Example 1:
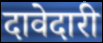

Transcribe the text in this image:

दावेदारी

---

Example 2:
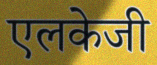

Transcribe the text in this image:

एलकेजी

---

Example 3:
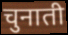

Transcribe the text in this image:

चुनाती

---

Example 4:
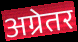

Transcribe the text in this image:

अग्रेतर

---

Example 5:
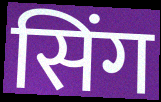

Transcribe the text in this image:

सिंग